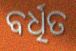
ବର୍ଧିତ